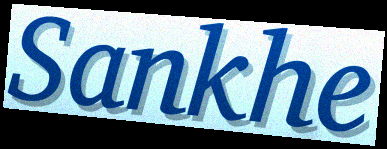
Sankhe